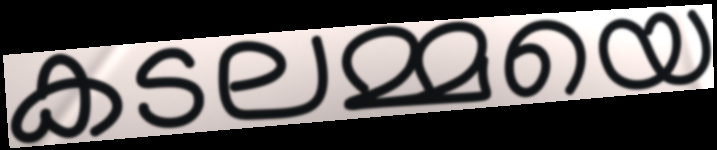
കടലമ്മയെ